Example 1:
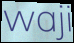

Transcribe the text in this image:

waji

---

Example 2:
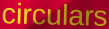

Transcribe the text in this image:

circulars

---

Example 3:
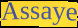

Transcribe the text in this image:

Assaye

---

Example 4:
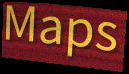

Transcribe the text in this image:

Maps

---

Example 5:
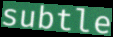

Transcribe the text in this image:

subtle